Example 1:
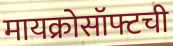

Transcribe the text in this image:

मायक्रोसॉफ्टची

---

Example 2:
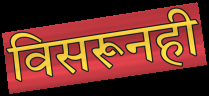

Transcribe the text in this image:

विसरूनही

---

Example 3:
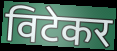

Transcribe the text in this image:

विटेकर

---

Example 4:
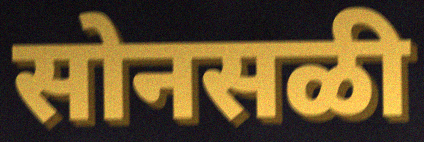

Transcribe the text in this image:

सोनसळी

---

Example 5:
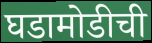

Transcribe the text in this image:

घडामोडीची